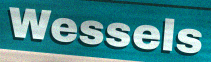
Wessels